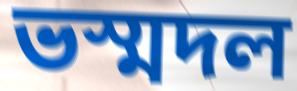
ভস্মদল